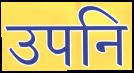
उपनि